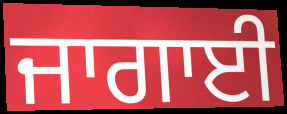
ਜਾਗਾਈ